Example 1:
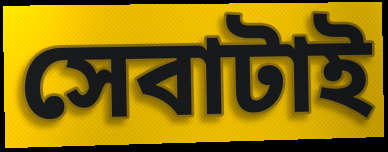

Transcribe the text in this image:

সেবাটাই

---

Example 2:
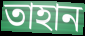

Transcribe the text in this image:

তাহান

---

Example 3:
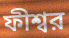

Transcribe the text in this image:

ফীশ্বর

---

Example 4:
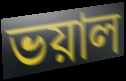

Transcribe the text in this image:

ভয়াল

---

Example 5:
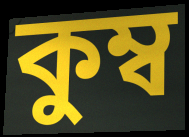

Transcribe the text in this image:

কুম্ব